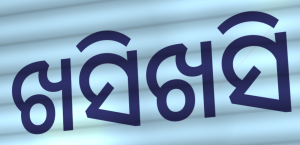
ଖସିଖସି